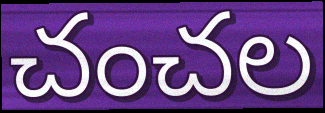
చంచల